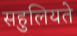
सहुलियते